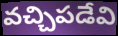
వచ్చిపడేవి